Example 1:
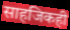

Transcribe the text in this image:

साहजिकही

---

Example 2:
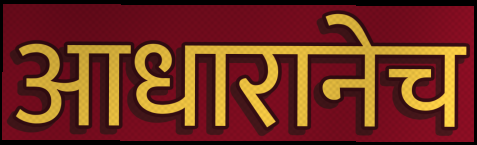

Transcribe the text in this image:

आधारानेच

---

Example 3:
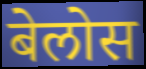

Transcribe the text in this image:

बेलोस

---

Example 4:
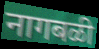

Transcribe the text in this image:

नागबळी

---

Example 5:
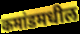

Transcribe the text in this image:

कमांडमधील